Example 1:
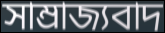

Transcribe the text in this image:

সাম্রাজ্যবাদ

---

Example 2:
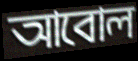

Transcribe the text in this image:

আবোল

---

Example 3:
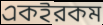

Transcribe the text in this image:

একইরকম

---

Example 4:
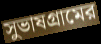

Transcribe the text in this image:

সুভাষগ্রামের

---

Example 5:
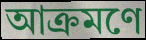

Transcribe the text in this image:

আক্রমণে